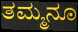
ತಮ್ಮನೂ